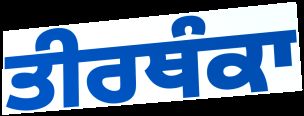
ਤੀਰਥੰਕਾ